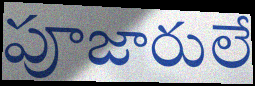
పూజారులే